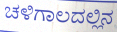
ಚಳಿಗಾಲದಲ್ಲಿನ